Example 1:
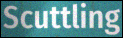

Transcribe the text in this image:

Scuttling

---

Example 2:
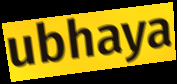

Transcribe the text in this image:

ubhaya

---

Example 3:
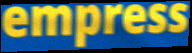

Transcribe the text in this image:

empress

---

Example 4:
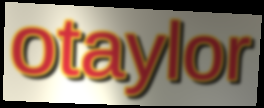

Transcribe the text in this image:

otaylor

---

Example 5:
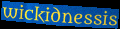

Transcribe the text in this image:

wickidnessis